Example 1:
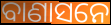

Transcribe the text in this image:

ବାଣାସନେ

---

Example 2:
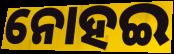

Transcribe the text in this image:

ନୋହଇ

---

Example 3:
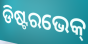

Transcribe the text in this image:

ଡିଷ୍ଟରଭେକ୍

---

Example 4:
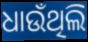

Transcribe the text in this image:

ଧାଉଁଥିଲି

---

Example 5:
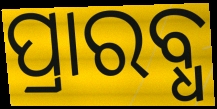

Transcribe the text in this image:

ପ୍ରାରବ୍ଧ